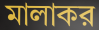
মালাকর